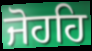
ਜੋਹਹਿ